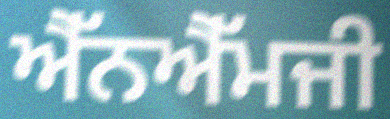
ਐੱਨਐੱਮਜੀ